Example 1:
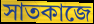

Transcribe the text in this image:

সাতকাজে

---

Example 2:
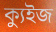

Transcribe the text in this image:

ক্যুইজ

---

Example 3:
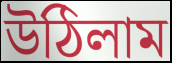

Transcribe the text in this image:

উঠিলাম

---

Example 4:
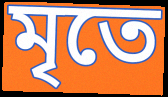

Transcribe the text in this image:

মৃতে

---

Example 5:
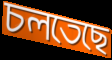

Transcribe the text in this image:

চলতেছে